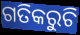
ଗତିକରୁଚି